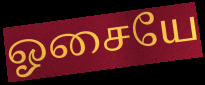
ஓசையே